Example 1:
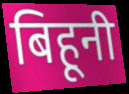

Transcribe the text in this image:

बिहूनी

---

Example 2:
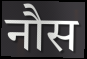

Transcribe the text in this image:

नौस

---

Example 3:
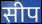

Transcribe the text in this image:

सीप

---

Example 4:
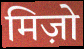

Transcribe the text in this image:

मिज़ो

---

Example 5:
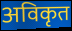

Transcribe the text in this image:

अविकृत